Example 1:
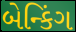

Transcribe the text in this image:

બેન્કિંગ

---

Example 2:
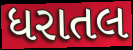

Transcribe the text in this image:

ધરાતલ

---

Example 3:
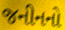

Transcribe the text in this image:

જનીનનો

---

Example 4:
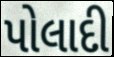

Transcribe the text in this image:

પોલાદી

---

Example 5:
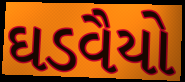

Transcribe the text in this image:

ઘડવૈયો